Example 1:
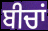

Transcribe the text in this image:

ਬੀਚਾਂ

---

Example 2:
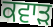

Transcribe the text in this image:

ਕਵਾੜ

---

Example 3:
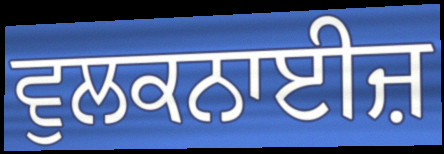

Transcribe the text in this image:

ਵੁਲਕਨਾਈਜ਼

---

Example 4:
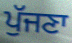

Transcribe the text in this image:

ਪੁੱਜਣਾ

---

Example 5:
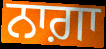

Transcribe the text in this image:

ਨਾਗ਼ਾ